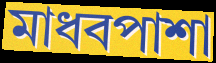
মাধবপাশা